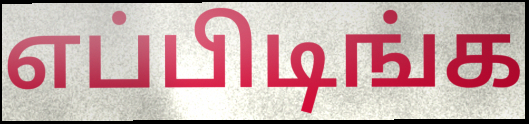
எப்பிடிங்க